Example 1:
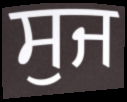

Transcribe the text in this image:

ਸੁਜ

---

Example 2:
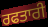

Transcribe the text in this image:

ਰਫਤਾਰੀ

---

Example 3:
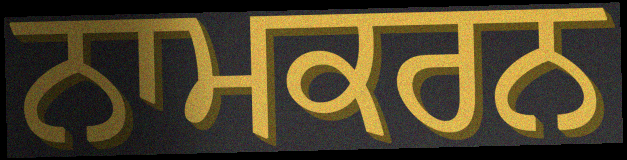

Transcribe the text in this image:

ਨਾਮਕਰਨ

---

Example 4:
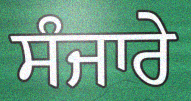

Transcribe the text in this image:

ਸੰਜਾਰੇ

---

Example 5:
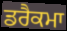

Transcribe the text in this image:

ਡਰੈਕਮਾ